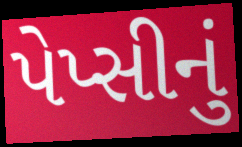
પેપ્સીનું